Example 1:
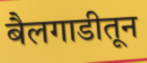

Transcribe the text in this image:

बैलगाडीतून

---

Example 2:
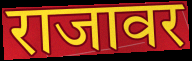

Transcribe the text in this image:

राजावर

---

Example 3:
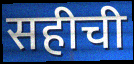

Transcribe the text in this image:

सहीची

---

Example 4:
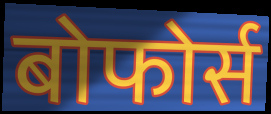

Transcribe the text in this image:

बोफोर्स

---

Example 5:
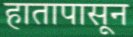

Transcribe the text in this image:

हातापासून